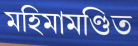
মহিমামণ্ডিত